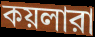
কয়লারা